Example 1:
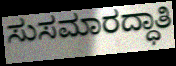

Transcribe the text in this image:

ಸುಸಮಾರದ್ಧಾತಿ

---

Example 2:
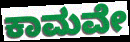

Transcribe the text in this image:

ಕಾಮವೇ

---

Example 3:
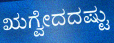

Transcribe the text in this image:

ಋಗ್ವೇದದಷ್ಟು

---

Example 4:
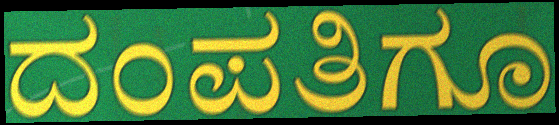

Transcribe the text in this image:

ದಂಪತಿಗೂ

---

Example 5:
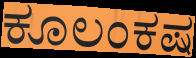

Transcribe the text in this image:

ಕೂಲಂಕಷ